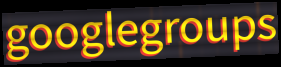
googlegroups